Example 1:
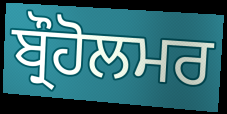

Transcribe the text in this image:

ਬ੍ਰੌਹੋਲਮਰ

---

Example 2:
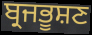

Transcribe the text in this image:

ਬ੍ਰਜਭੂਸ਼ਣ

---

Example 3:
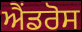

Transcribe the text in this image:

ਐਂਡਰੋਸ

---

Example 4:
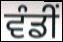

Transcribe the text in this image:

ਵੰਡੀਂ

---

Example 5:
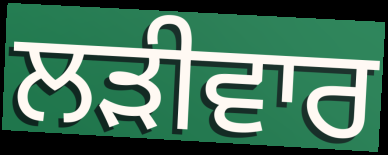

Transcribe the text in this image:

ਲੜੀਵਾਰ